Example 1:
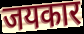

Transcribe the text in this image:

जयकार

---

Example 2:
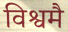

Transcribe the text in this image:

विश्वमै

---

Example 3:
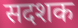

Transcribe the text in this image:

सदशक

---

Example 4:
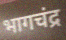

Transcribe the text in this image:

भागचंद्र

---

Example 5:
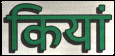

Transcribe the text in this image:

कियां